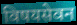
विषयसेवन